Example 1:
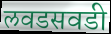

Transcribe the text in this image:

लवडसवडी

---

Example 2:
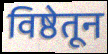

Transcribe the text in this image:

विष्ठेतून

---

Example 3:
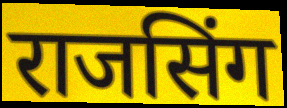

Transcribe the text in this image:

राजसिंग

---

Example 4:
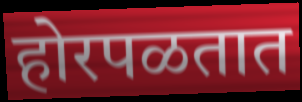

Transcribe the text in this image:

होरपळतात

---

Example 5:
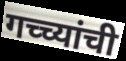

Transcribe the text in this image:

गच्च्यांची